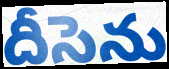
దీసెను